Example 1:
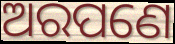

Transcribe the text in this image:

ଅରପଣେ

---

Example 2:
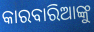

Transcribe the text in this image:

କାରବାରିଆଙ୍କୁ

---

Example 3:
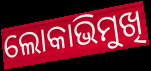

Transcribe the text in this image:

ଲୋକାଭିମୁଖି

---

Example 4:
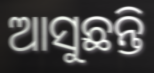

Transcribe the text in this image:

ଆସୁଛନ୍ତି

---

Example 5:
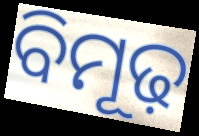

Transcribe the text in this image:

ବିମୂଢ଼